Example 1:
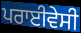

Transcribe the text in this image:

ਪਰਾਈਵੇਸੀ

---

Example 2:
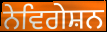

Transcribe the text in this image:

ਨੇਵਿਗੇਸ਼ਨ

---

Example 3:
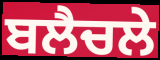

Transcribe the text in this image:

ਬਲੈਚਲੇ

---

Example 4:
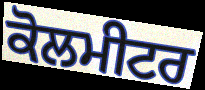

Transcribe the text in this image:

ਕੋਲਮੀਟਰ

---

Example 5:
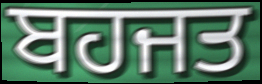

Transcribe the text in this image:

ਬਹਜਤ